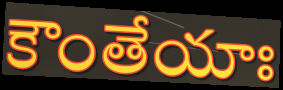
కౌంతేయాః